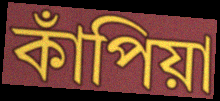
কাঁপিয়া